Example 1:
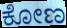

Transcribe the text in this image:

ಕೋಣ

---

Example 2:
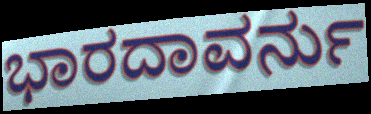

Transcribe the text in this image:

ಭಾರದಾವರ್ನು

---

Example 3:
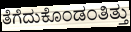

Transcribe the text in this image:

ತೆಗೆದುಕೊಂಡಂತಿತ್ತು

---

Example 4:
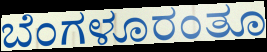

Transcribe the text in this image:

ಬೆಂಗಳೂರಂತೂ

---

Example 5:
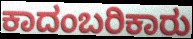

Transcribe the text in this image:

ಕಾದಂಬರಿಕಾರು